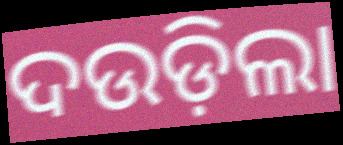
ଦଉଡ଼ିଲା